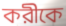
করীকে